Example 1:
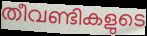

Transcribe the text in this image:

തീവണ്ടികളുടെ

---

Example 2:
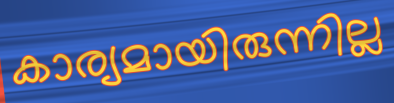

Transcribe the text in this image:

കാര്യമായിരുന്നില്ല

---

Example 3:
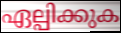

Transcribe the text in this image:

ഏല്പിക്കുക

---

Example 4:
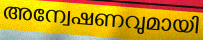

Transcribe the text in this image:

അന്വേഷണവുമായി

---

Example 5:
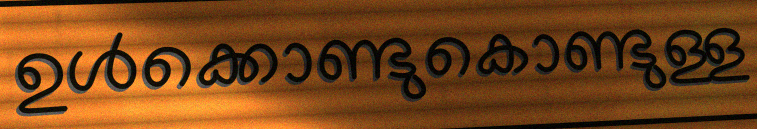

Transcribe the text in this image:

ഉൾക്കൊണ്ടുകൊണ്ടുള്ള